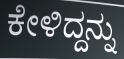
ಕೇಳಿದ್ದನ್ನು